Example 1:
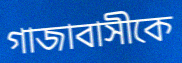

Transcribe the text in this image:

গাজাবাসীকে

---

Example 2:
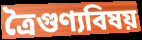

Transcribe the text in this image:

ত্রৈগুণ্যবিষয়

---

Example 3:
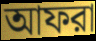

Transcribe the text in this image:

আফরা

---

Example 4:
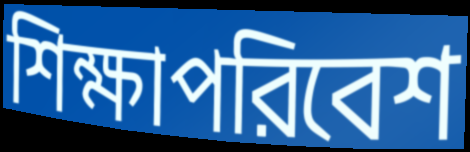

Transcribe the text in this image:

শিক্ষাপরিবেশ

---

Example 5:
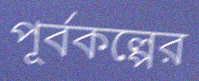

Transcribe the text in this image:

পূর্বকল্পের